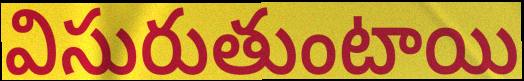
విసురుతుంటాయి